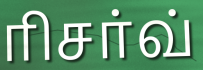
ரிசர்வ்